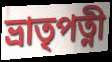
ভ্রাতৃপত্নী